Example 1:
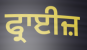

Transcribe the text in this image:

ਫ੍ਰਾਈਜ਼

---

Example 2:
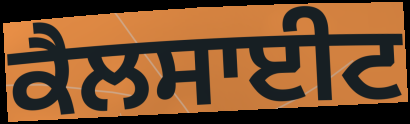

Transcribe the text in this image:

ਕੈਲਸਾਈਟ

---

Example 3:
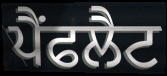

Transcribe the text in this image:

ਪੈਂਫਲੈਟ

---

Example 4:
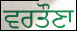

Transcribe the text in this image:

ਵਰਤੌਣਾ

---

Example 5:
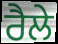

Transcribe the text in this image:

ਰੈਲੇ